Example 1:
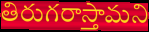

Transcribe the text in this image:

తిరుగరాస్తామని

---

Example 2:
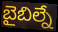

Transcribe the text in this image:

బైబిల్నే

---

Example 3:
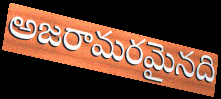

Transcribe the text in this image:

అజరామరమైనది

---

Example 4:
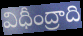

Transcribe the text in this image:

విధీంద్రాది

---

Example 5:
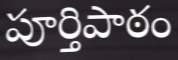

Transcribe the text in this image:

పూర్తిపాఠం